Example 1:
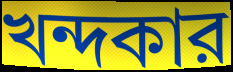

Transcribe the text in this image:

খন্দকার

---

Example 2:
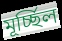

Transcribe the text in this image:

মূর্চ্ছিল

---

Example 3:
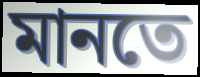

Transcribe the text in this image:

মানতে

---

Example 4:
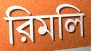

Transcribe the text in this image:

রিমলি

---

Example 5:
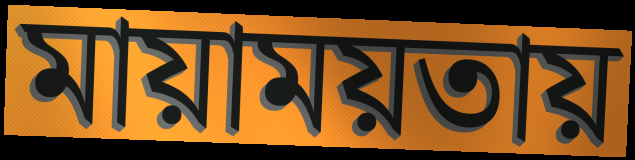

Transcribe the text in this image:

মায়াময়তায়